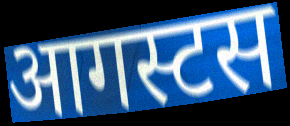
आगस्टस